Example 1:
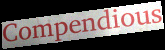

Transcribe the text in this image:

Compendious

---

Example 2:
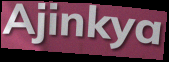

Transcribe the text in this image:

Ajinkya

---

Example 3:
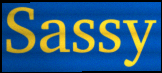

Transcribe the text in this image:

Sassy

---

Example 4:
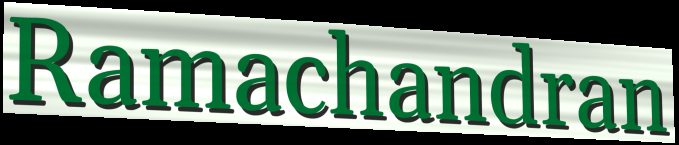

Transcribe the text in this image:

Ramachandran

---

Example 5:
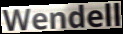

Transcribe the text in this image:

Wendell